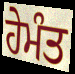
ਹੇਮੰਤ